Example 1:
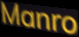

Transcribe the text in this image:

Manro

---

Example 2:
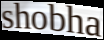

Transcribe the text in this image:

shobha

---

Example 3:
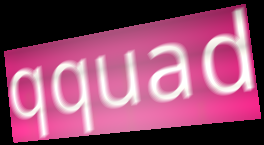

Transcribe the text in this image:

qquad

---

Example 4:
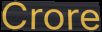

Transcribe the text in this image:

Crore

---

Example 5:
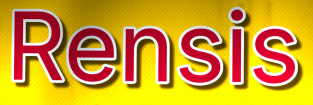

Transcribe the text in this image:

Rensis